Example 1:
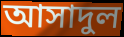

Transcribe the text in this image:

আসাদুল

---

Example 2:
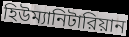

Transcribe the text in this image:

হিউম্যানিটারিয়ান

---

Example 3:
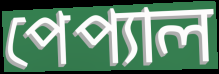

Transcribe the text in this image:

পেপ্যাল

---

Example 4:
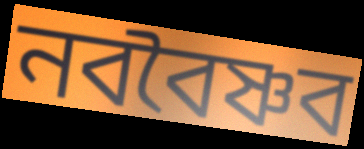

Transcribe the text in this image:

নববৈষ্ণব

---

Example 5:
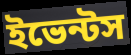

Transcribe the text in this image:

ইভেন্টস